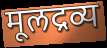
मूलद्रव्य